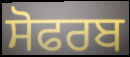
ਸੋਫਰਬ